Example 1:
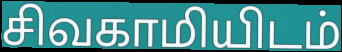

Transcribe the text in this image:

சிவகாமியிடம்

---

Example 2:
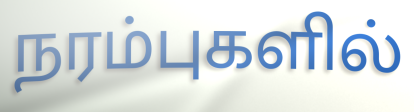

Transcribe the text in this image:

நரம்புகளில்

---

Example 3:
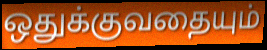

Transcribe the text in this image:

ஒதுக்குவதையும்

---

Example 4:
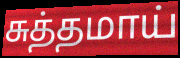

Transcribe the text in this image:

சுத்தமாய்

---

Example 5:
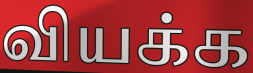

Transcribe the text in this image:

வியக்க